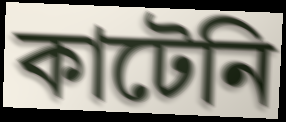
কাটেনি